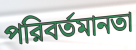
পরিবর্তমানতা